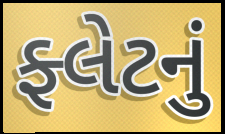
ફ્લેટનું